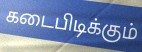
கடைபிடிக்கும்